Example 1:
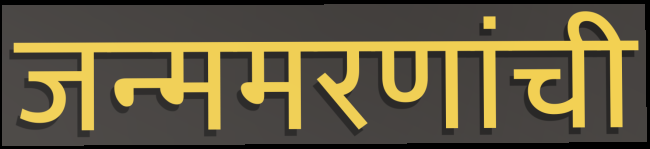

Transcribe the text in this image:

जन्ममरणांची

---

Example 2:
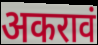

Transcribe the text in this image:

अकरावं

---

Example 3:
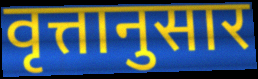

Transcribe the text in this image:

वृत्तानुसार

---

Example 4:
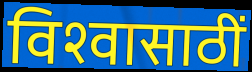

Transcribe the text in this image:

विश्वासाठीं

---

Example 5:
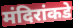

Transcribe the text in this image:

मंदिरांकडे